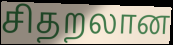
சிதறலான